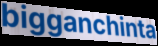
bigganchinta